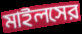
মাইলসের